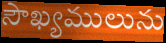
సౌఖ్యములును